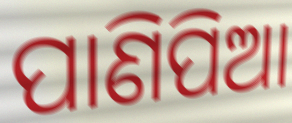
ପାଣିପିଆ